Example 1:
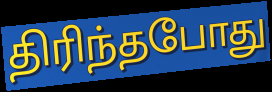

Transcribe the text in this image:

திரிந்தபோது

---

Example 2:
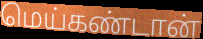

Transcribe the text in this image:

மெய்கண்டான்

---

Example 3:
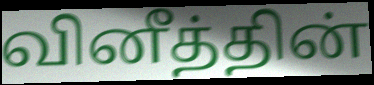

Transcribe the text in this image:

வினீத்தின்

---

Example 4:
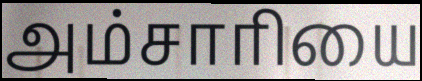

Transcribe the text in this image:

அம்சாரியை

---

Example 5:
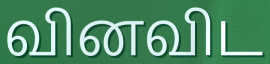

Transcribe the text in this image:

வினவிட